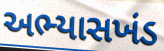
અભ્યાસખંડ